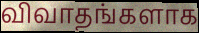
விவாதங்களாக